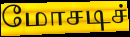
மோசடிச்